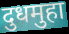
दुधमुहा